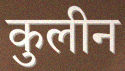
कुलीन